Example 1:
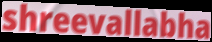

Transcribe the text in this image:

shreevallabha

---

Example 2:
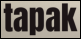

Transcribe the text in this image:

tapak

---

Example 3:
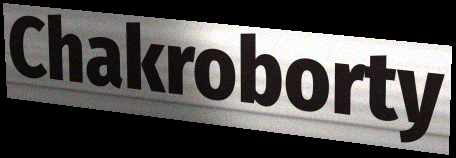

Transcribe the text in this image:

Chakroborty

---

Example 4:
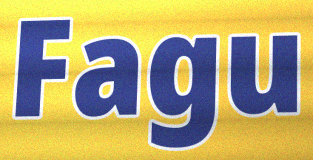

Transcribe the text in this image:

Fagu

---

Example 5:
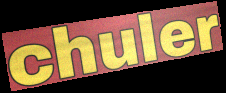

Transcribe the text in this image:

chuler